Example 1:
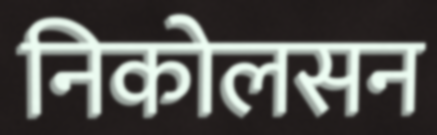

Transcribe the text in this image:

निकोलसन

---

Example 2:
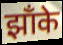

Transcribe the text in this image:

झाँके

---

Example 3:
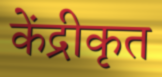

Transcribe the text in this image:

केंद्रीकृत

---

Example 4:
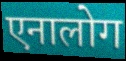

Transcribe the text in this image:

एनालोग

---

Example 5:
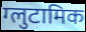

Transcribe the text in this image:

ग्लुटामिक